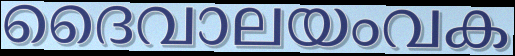
ദൈവാലയംവക